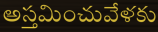
అస్తమించువేళకు